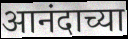
आनंदाच्या